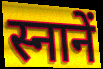
स्नानें